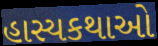
હાસ્યકથાઓ